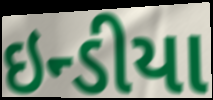
ઇન્ડીયા